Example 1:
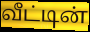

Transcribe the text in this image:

வீட்டின்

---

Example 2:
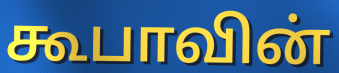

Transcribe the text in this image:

கூபாவின்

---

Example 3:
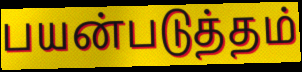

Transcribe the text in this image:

பயன்படுத்தம்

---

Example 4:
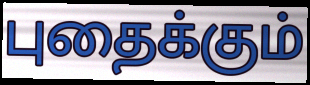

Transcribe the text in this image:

புதைக்கும்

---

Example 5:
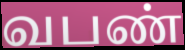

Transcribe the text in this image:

வபண்